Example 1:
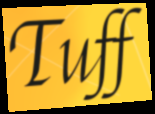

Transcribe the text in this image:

Tuff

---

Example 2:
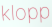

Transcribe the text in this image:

klopp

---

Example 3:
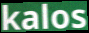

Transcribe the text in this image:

kalos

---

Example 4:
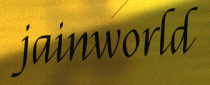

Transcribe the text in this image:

jainworld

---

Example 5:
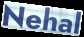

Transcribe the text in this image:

Nehal